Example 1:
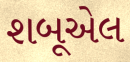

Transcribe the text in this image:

શબૂએલ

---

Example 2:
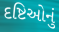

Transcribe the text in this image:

દષ્ટિઓનું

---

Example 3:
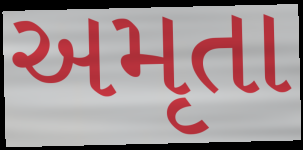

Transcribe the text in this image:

અમૃતા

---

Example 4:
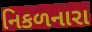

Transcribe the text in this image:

નિકળનારા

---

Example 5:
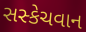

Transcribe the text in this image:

સસ્કેચવાન